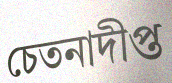
চেতনাদীপ্ত